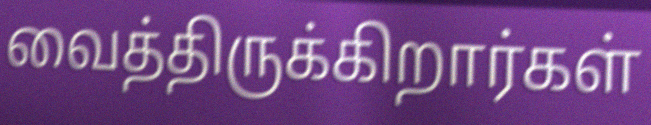
வைத்திருக்கிறார்கள்